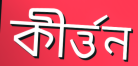
কীৰ্ত্তন